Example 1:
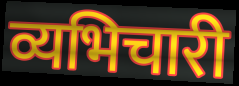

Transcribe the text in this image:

व्यभिचारी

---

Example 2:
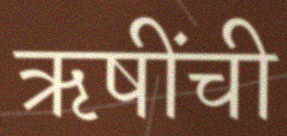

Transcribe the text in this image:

ऋषींची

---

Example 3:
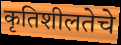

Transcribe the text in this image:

कृतिशीलतेचे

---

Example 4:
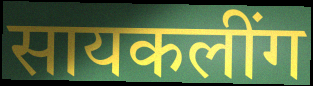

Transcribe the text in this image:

सायकलींग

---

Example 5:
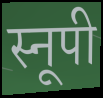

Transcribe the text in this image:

स्नूपी